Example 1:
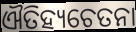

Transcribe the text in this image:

ଐତିହ୍ୟଚେତନା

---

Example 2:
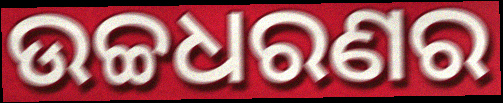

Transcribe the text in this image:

ଉଚ୍ଚଧରଣର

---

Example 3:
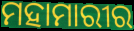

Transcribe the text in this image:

ମହାମାରୀର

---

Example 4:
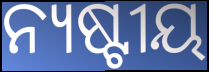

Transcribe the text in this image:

ନ୍ୟଷ୍ଟୀୟ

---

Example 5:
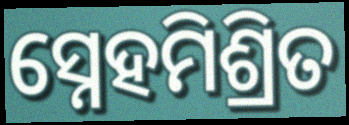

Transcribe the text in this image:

ସ୍ନେହମିଶ୍ରିତ